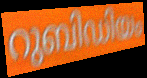
റുബിഡിയം